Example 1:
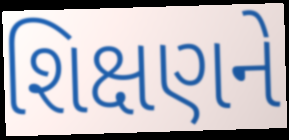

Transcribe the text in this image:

શિક્ષણને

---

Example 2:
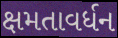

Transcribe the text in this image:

ક્ષમતાવર્ધન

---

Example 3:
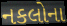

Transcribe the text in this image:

નકલોના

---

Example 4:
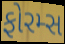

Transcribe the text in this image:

ફોરમ્સ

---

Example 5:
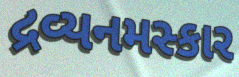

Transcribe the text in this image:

દ્રવ્યનમસ્કાર